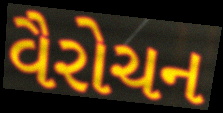
વૈરોચન